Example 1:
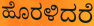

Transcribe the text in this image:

ಹೊರಳಿದರೆ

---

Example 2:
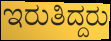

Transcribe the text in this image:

ಇರುತಿದ್ದರು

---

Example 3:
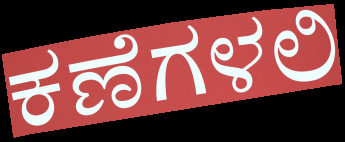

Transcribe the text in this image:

ಕಣೆಗಳಲಿ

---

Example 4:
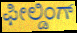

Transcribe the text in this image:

ಫೀಲ್ಡಿಂಗ್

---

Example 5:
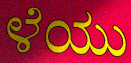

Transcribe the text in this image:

ಳೆಯು